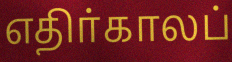
எதிர்காலப்